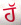
ਹੱ